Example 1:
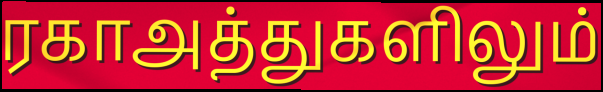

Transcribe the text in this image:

ரகாஅத்துகளிலும்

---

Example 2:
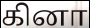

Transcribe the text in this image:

கினா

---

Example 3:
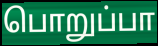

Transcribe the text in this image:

பொறுப்பா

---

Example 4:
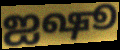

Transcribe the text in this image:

ஐஷூ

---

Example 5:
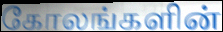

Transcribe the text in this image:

கோலங்களின்